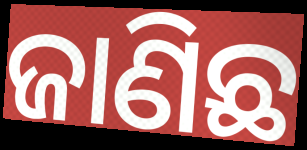
ଜାଣିଛ